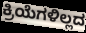
ಕ್ರಿಯೆಗಳಿಲ್ಲದ